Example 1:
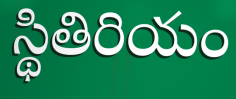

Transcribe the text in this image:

స్థితిరియం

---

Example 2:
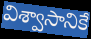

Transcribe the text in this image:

విశ్వాసానికే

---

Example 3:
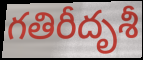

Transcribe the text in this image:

గతిరీదృశీ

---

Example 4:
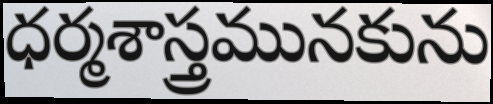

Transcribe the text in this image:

ధర్మశాస్త్రమునకును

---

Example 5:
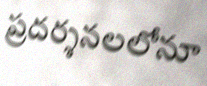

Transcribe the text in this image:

ప్రదర్శనలలోనూ